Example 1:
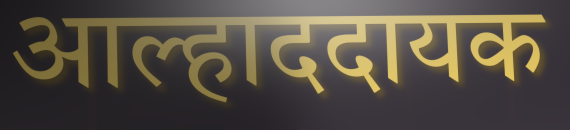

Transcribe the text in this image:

आल्हाददायक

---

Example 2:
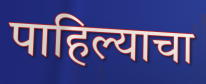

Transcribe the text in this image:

पाहिल्याचा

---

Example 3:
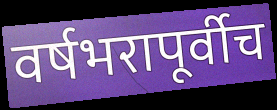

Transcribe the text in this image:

वर्षभरापूर्वीच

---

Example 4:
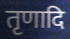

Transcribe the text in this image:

तृणादि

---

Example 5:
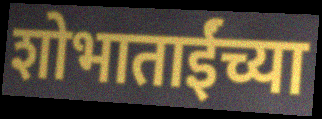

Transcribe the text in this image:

शोभाताईंच्या